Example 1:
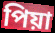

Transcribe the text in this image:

পিয়া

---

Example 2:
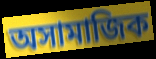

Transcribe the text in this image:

অসামাজিক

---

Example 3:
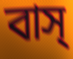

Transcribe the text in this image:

বাস্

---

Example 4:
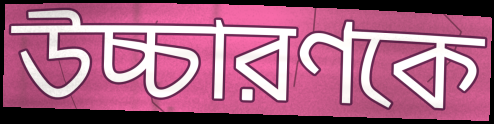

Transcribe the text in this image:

উচ্চারণকে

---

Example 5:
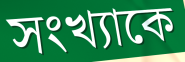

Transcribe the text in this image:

সংখ্যাকে